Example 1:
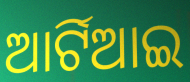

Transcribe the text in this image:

ଆର୍ଟିଆଇ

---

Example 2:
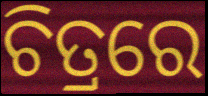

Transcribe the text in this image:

ଚିତ୍ରରେ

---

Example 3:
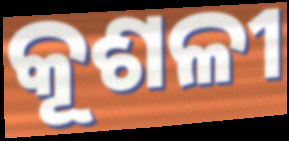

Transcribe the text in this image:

କୂଶଳୀ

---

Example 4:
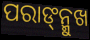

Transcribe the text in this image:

ପରାଙ୍‌ନ୍ମୁଖ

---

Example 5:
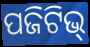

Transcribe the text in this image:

ପଜିଟିଭ୍